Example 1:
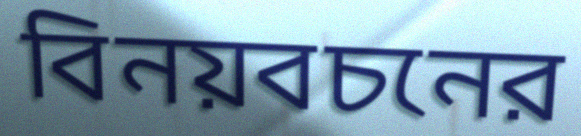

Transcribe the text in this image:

বিনয়বচনের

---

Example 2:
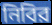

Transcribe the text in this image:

নিবির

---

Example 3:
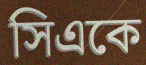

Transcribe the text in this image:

সিএকে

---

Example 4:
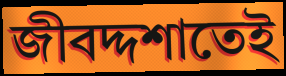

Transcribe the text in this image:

জীবদ্দশাতেই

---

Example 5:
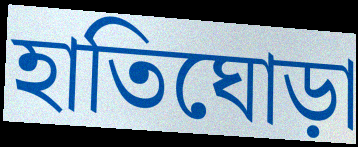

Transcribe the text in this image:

হাতিঘোড়া